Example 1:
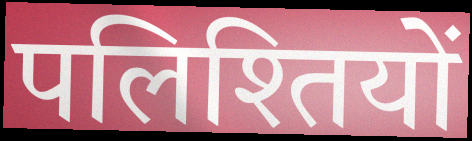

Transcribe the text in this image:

पलिश्‍तियों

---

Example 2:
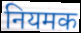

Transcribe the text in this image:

नियमक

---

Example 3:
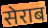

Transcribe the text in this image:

सेराब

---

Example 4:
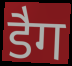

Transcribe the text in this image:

डैग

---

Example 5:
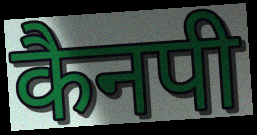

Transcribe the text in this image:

कैनपी